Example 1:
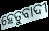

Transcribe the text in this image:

ହେତୁବାଦୀ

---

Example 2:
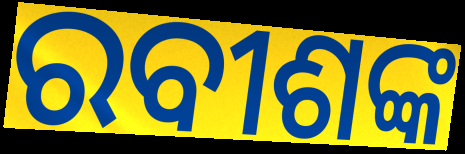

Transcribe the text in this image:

ରବୀଶଙ୍କ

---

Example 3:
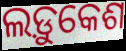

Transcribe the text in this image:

ଲଡ଼ୁକେଶ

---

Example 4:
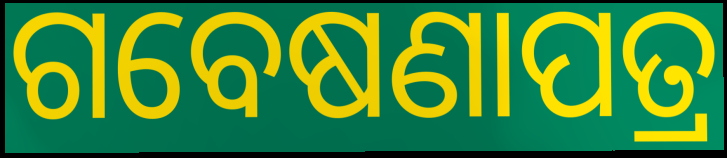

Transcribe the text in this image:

ଗବେଷଣାପତ୍ର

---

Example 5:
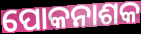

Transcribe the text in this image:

ପୋକନାଶକ